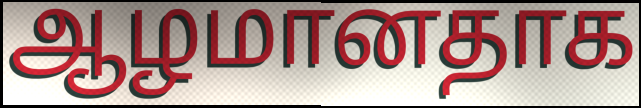
ஆழமானதாக